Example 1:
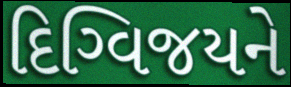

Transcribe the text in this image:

દિગ્વિજયને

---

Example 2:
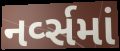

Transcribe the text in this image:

નર્વ્સમાં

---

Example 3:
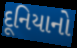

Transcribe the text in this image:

દૂનિયાનો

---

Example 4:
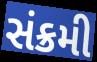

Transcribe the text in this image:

સંક્રમી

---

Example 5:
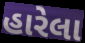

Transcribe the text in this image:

હારેલા